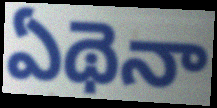
ఏథెనా